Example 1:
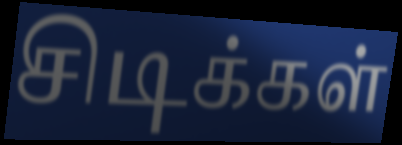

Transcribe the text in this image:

சிடிக்கள்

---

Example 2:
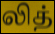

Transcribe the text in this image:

லித்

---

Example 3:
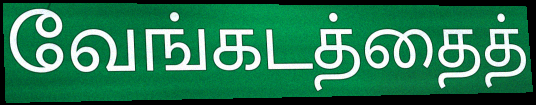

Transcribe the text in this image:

வேங்கடத்தைத்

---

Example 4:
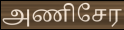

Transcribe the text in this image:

அணிசேர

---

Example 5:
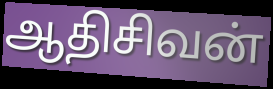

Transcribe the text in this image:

ஆதிசிவன்